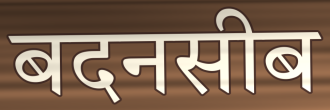
बदनसीब